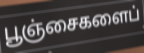
பூஞ்சைகளைப்